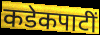
कडेकपाटीं